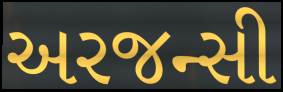
અરજન્સી